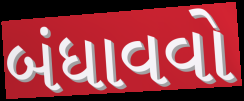
બંધાવવો